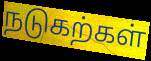
நடுகற்கள்